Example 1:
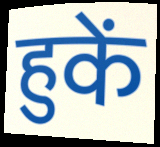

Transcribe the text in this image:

हुकें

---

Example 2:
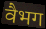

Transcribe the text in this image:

वैभग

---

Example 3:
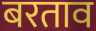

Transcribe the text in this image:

बरताव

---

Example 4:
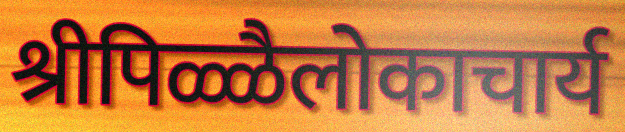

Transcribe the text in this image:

श्रीपिळ्ळैलोकाचार्य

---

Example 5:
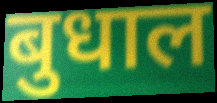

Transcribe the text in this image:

बुधाल